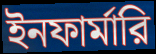
ইনফার্মারি